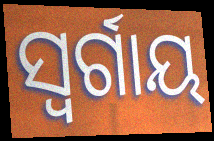
ସ୍ବର୍ଗାୟ